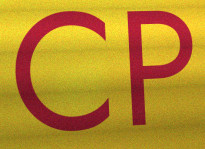
CP